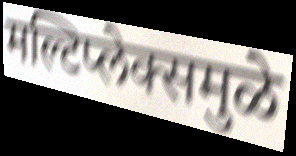
मल्टिप्लेक्समुळे